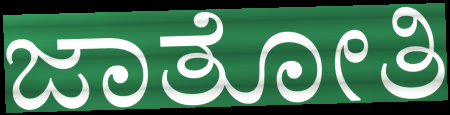
ಜಾತೋತಿ